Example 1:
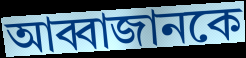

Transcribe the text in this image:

আব্বাজানকে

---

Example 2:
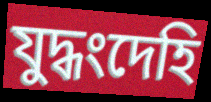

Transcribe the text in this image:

যুদ্ধংদেহি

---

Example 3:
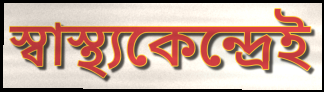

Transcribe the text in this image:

স্বাস্থ্যকেন্দ্রেই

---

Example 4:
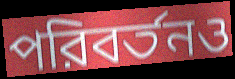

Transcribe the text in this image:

পরিবর্তনও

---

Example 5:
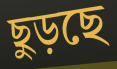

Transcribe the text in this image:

ছুড়ছে